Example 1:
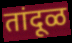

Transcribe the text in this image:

तांदूळ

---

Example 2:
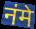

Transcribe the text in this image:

न॑मे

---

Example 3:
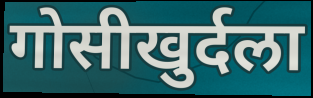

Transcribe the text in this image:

गोसीखुर्दला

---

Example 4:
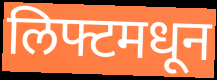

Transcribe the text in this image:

लिफ्टमधून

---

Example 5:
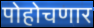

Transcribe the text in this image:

पोहोचणार